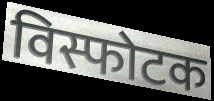
विस्फोटक